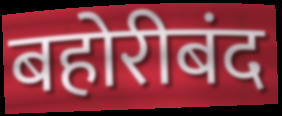
बहोरीबंद